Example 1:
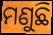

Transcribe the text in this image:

ମଣୁଛି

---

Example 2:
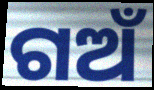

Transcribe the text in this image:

ଗଅଁ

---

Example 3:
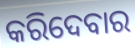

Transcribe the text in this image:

କରିଦେବାର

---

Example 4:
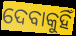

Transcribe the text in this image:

ଦେବାକୁହିଁ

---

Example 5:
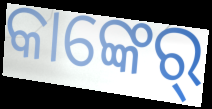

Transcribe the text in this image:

କାଙ୍କେର୍